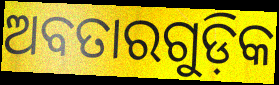
ଅବତାରଗୁଡ଼ିକ